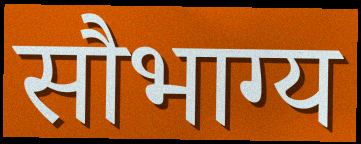
सौभाग्य